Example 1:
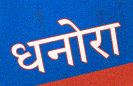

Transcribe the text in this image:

धनोरा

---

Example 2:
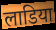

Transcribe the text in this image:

लाडिया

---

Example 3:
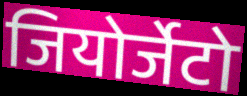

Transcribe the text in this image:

जियोर्जेटो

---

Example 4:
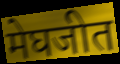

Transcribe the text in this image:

मेघजीत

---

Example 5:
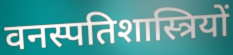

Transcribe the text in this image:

वनस्पतिशास्त्रियों